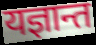
यज्ञान्त